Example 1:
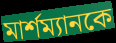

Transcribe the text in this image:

মার্শম্যানকে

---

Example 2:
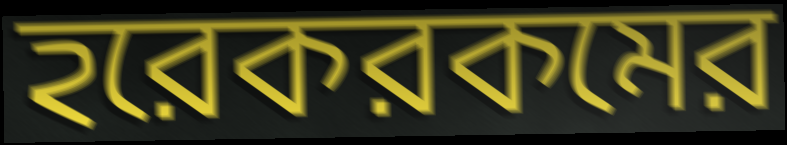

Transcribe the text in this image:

হরেকরকমের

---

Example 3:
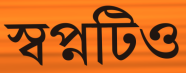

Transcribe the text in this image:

স্বপ্নটিও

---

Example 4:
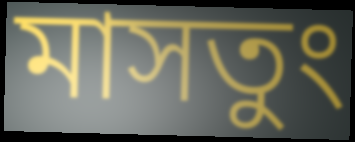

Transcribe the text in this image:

মাসতুং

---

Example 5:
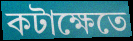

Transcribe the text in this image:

কটাক্ষেতে